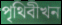
পৃথিবীখন